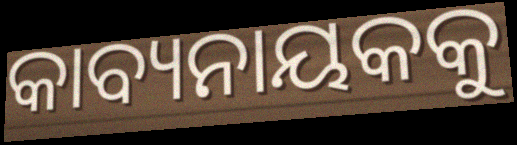
କାବ୍ୟନାୟକକୁ